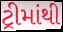
ટ્રીમાંથી